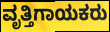
ವೃತ್ತಿಗಾಯಕರು